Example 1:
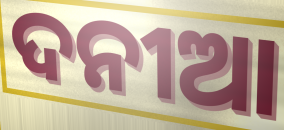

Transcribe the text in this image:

ଦନୀଆ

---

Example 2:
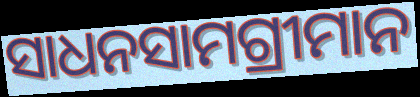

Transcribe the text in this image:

ସାଧନସାମଗ୍ରୀମାନ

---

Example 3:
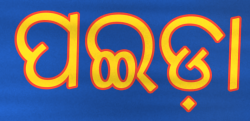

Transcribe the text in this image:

ପଇଡ଼ା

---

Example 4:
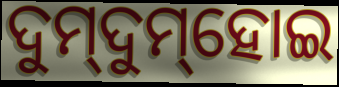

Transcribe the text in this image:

ଦୁମ୍‌ଦୁମ୍‌ହୋଇ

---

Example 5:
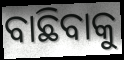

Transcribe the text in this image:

ବାଛିବାକୁ